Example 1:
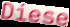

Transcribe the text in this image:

Diese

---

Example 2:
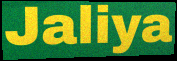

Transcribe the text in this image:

Jaliya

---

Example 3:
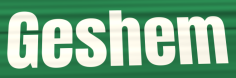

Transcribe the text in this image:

Geshem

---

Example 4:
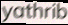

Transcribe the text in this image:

yathrib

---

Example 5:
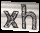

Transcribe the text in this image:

xh